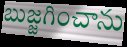
బుజ్జగించాను